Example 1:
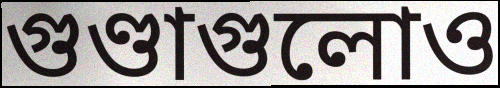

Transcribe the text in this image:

গুণ্ডাগুলোও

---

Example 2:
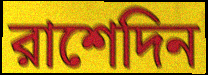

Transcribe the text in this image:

রাশেদিন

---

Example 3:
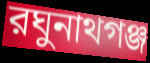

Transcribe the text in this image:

রঘুনাথগঞ্জ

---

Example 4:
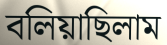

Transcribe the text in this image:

বলিয়াছিলাম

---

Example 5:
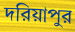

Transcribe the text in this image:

দরিয়াপুর